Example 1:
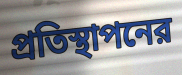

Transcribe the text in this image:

প্রতিস্থাপনের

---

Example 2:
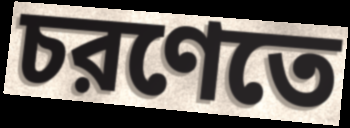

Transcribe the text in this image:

চরণেতে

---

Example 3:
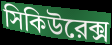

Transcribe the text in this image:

সিকিউরেক্স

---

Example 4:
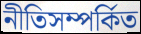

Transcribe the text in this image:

নীতিসম্পর্কিত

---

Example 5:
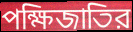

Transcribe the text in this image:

পক্ষিজাতির